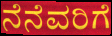
ನೆನೆವರಿಗೆ